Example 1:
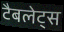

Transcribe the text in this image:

टैबलेट्स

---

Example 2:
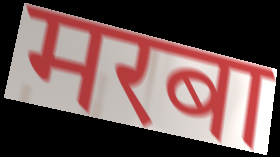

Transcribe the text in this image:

मरबा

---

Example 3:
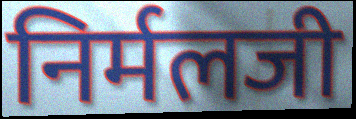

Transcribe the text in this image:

निर्मलजी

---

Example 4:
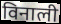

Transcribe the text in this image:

विनाली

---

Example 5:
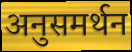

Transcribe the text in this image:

अनुसमर्थन